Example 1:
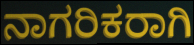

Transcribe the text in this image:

ನಾಗರಿಕರಾಗಿ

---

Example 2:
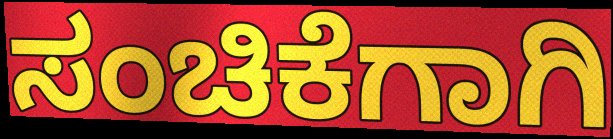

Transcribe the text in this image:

ಸಂಚಿಕೆಗಾಗಿ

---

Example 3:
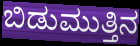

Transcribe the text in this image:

ಬಿಡುಮುತ್ತಿನ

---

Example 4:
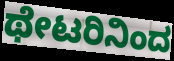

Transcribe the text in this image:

ಥೇಟರಿನಿಂದ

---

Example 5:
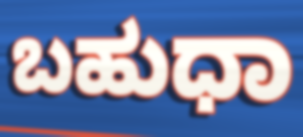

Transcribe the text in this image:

ಬಹುಧಾ